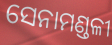
ସେନାମଣ୍ଡଳୀ